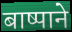
बाष्पाने